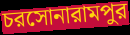
চরসোনারামপুর